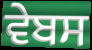
ਵੇਬਸ